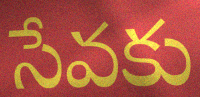
సేవకు